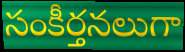
సంకీర్తనలుగా